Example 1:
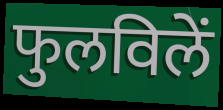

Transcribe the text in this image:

फुलविलें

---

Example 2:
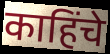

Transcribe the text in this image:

काहिंचे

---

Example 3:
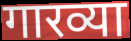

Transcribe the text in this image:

गारव्या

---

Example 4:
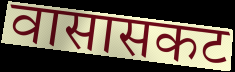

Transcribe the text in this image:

वासासकट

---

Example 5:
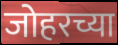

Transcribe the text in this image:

जोहरच्या